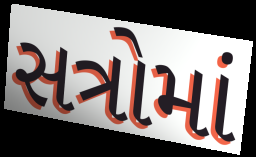
સત્રોમાં